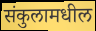
संकुलामधील